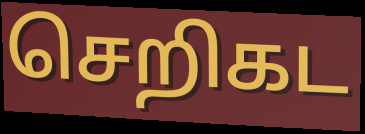
செறிகட